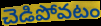
చెడిపోవటం